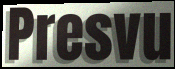
Presvu